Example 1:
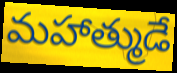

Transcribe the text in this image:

మహాత్ముడే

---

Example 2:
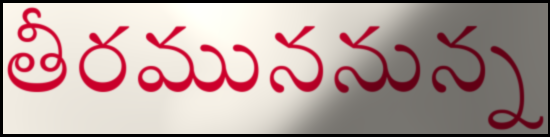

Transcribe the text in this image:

తీరముననున్న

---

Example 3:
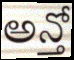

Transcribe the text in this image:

అన్తో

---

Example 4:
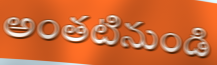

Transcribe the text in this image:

అంతటినుండి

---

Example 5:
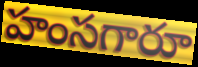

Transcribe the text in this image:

హంసగారూ